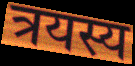
त्रयस्य